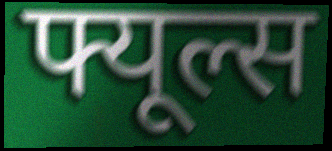
फ्यूल्स